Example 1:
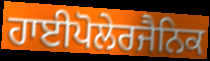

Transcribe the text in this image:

ਹਾਈਪੋਲੇਰਜੈਨਿਕ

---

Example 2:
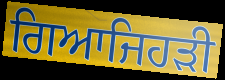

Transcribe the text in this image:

ਗਿਆਜਿਹੜੀ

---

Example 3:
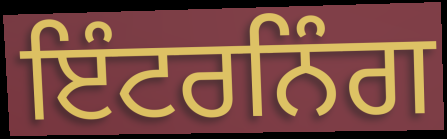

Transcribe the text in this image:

ਇੰਟਰਨਿੰਗ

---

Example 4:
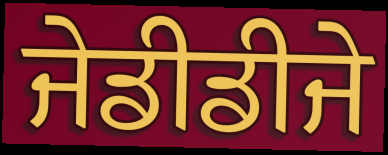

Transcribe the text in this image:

ਜੇਡੀਡੀਜੇ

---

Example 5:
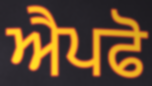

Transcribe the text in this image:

ਐਪਫੋ